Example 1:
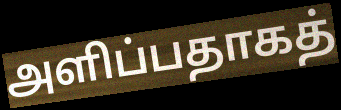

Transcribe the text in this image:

அளிப்பதாகத்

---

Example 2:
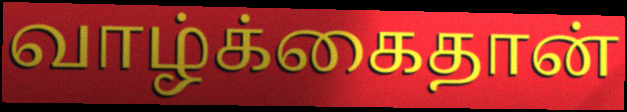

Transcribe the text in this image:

வாழ்க்கைதான்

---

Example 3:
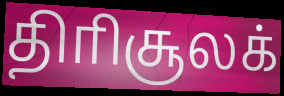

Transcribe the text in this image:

திரிசூலக்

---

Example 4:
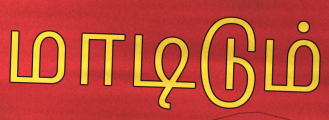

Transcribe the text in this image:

மாடிடும்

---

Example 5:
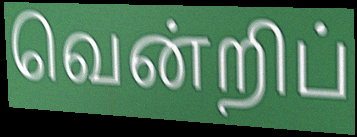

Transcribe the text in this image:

வென்றிப்